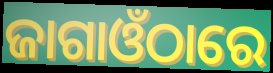
ଜାଗାଓଁଠାରେ